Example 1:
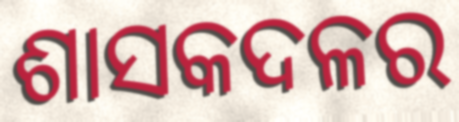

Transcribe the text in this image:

ଶାସକଦଳର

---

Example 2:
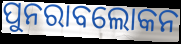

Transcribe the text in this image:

ପୁନରାବଲୋକନ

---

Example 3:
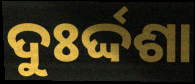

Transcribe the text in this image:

ଦୁଃର୍ଦ୍ଦଶା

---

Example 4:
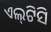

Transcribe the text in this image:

ଏଲ୍‌ଟିସି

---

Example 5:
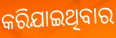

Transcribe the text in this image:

କରିଯାଇଥିବାର